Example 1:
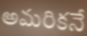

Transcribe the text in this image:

అమరికనే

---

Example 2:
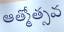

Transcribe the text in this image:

ఆత్మోత్సవ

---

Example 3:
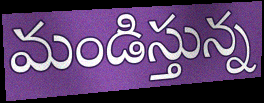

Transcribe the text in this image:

మండిస్తున్న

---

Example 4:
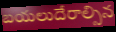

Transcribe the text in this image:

బయలుదేరాల్సిన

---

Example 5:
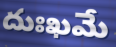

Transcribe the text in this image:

దుఃఖమే